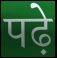
पढ़े